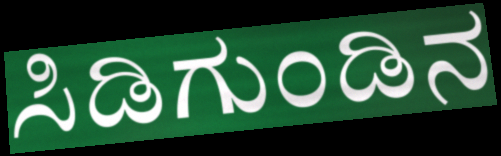
ಸಿಡಿಗುಂಡಿನ